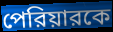
পেরিয়ারকে